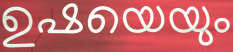
ഉഷയെയും